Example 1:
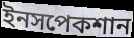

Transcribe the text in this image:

ইনসপেকশান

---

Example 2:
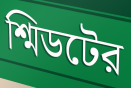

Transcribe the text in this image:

শ্মিডটের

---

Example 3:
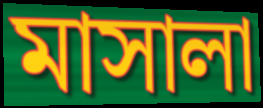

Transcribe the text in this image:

মাসালা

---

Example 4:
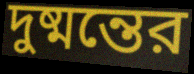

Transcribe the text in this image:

দুষ্মন্তের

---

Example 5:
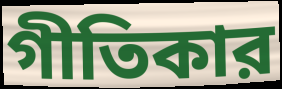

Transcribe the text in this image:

গীতিকার